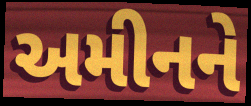
અમીનને